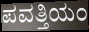
ಪವತ್ತಿಯಂ